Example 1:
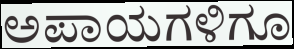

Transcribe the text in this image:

ಅಪಾಯಗಳಿಗೂ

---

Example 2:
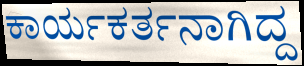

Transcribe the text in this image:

ಕಾರ್ಯಕರ್ತನಾಗಿದ್ದ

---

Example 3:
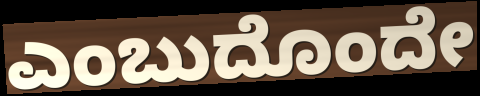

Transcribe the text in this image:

ಎಂಬುದೊಂದೇ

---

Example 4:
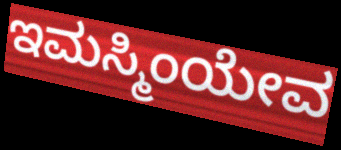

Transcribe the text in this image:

ಇಮಸ್ಮಿಂಯೇವ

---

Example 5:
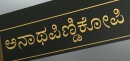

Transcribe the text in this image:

ಅನಾಥಪಿಣ್ಡಿಕೋಪಿ